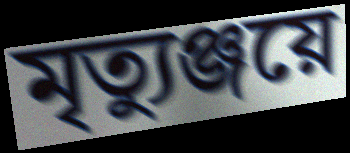
মৃত্যুঞ্জয়ে